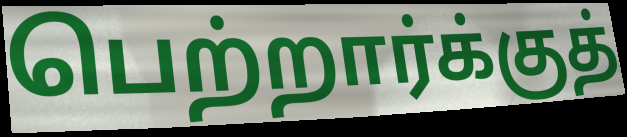
பெற்றார்க்குத்